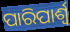
ପାରିପାର୍ଶ୍ୱ